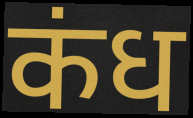
कंध